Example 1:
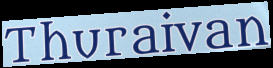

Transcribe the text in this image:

Thuraivan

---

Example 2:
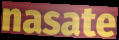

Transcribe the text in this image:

nasate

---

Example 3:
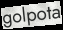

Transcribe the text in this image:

golpota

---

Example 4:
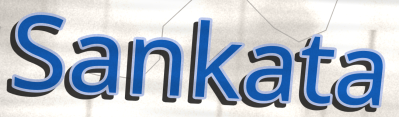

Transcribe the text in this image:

Sankata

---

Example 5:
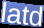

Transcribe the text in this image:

latd